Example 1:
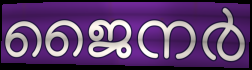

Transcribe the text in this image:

ജൈനർ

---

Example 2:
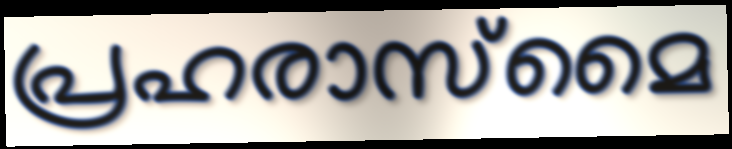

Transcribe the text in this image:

പ്രഹരാസ്മൈ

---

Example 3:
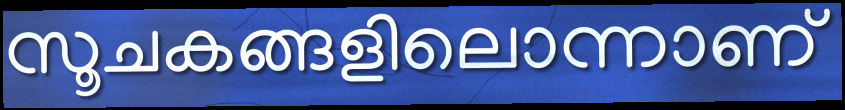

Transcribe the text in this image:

സൂചകങ്ങളിലൊന്നാണ്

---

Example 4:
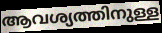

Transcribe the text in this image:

ആവശ്യത്തിനുള്ള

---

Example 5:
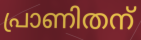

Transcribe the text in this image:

പ്രാണിതന്